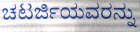
ಚಟರ್ಜಿಯವರನ್ನು